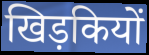
खिड़कियों